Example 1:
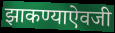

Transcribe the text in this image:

झाकण्याऐवजी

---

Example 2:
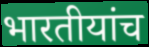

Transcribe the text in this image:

भारतीयांच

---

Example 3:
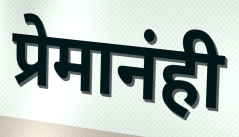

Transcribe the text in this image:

प्रेमानंही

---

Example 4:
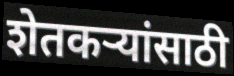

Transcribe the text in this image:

शेतकऱ्यांसाठी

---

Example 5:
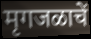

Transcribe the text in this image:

मृगजळाचें